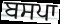
ਬਸਪਾ